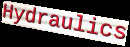
Hydraulics